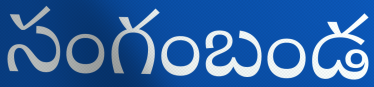
సంగంబండ